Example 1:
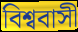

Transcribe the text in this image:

বিশ্ববাসী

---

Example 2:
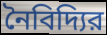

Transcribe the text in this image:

নৈবিদ্যির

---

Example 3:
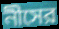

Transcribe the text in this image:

নীসের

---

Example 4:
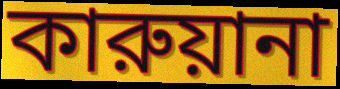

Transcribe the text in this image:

কারুয়ানা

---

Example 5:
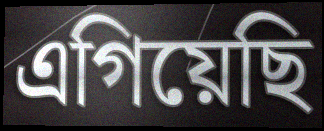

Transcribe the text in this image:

এগিয়েছি